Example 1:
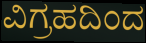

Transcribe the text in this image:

ವಿಗ್ರಹದಿಂದ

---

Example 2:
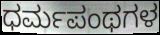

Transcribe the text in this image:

ಧರ್ಮಪಂಥಗಳ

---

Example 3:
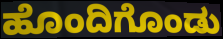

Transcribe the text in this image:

ಹೊಂದಿಗೊಂಡು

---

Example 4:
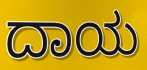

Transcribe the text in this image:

ದಾಯ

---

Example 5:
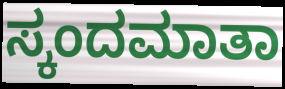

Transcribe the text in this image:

ಸ್ಕಂದಮಾತಾ